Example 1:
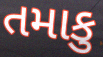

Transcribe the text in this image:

તમાકુ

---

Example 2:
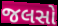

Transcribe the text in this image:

જલસો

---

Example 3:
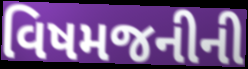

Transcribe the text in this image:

વિષમજનીની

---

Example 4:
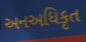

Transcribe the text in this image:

અનઅધિકૃત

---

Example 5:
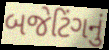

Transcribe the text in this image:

બજેટિંગનું